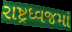
રાષ્ટ્રધ્વજમાં